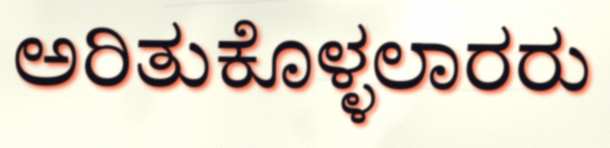
ಅರಿತುಕೊಳ್ಳಲಾರರು